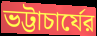
ভট্টাচার্যের